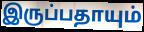
இருப்பதாயும்